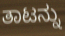
ತಾಟನ್ನು